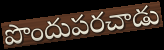
పొందుపరచాడు